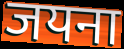
जयना